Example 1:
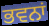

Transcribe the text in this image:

ਭਵਨਾਂ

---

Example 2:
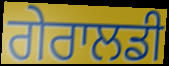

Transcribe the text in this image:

ਗੇਰਾਲਡੀ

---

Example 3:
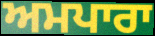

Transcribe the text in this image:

ਅਮਪਾਰਾ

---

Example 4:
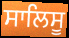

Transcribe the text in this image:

ਸਾਲਿਸੂ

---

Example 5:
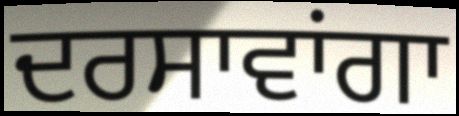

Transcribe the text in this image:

ਦਰਸਾਵਾਂਗਾ